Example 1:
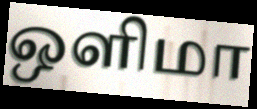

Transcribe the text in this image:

ஒளிமா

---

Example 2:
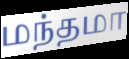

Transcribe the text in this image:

மந்தமா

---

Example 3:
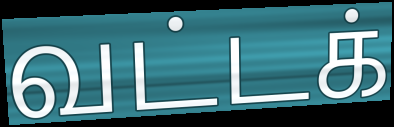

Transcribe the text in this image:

வட்டக்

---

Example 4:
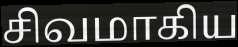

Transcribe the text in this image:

சிவமாகிய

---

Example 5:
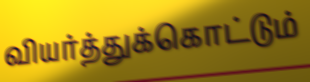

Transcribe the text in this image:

வியர்த்துக்கொட்டும்